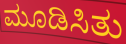
ಮೂಡಿಸಿತು